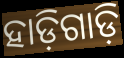
ହାଡ଼ିଗାଡ଼ି